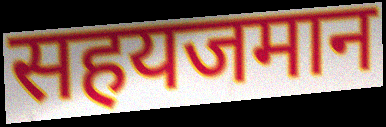
सहयजमान